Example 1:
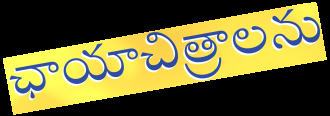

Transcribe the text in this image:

ఛాయాచిత్రాలను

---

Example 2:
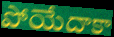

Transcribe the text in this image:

పోయేదాకా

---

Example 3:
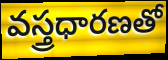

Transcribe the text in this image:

వస్త్రధారణతో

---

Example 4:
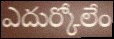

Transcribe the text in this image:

ఎదుర్కోలేం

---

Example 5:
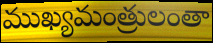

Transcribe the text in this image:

ముఖ్యమంత్రులంతా